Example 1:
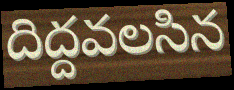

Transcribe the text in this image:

దిద్దవలసిన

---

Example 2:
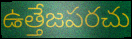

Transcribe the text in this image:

ఉత్తేజపరచు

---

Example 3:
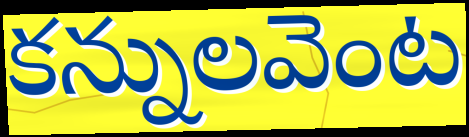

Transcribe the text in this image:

కన్నులవెంట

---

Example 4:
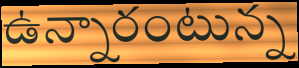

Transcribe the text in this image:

ఉన్నారంటున్న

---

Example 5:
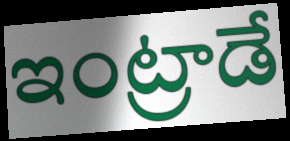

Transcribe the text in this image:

ఇంట్రాడే